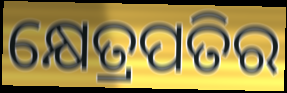
କ୍ଷେତ୍ରପତିର